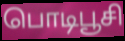
பொடிபூசி